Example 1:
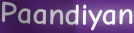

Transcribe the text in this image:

Paandiyan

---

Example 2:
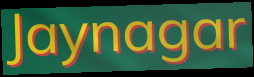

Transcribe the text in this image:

Jaynagar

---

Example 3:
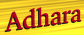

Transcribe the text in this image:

Adhara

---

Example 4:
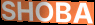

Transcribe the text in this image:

SHOBA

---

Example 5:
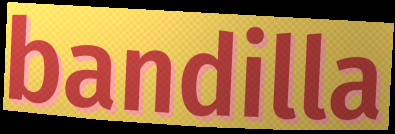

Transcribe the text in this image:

bandilla